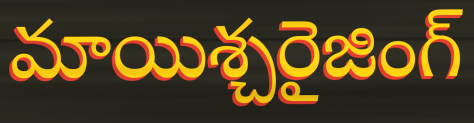
మాయిశ్చరైజింగ్